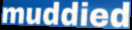
muddied